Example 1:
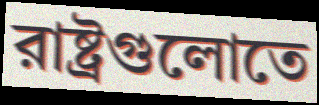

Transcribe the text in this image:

রাষ্ট্রগুলোতে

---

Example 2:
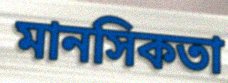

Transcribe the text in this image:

মানসিকতা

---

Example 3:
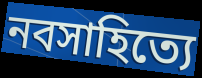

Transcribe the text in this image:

নবসাহিত্যে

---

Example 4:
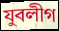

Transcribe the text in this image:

যুবলীগ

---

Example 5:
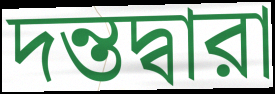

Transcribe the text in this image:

দন্তদ্বারা